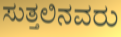
ಸುತ್ತಲಿನವರು